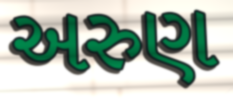
અરુણ